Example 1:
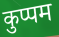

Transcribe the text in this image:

कुप्पम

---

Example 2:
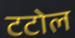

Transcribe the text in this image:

टटोल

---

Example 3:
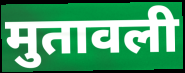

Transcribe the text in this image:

मुतावली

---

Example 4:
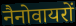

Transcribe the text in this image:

नैनोवायरों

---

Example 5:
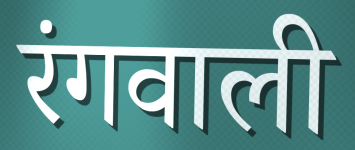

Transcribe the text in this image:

रंगवाली